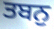
ਤਬਨੁ